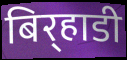
बिर्‍हाडी